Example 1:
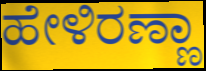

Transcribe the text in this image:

ಹೇಳಿರಣ್ಣಾ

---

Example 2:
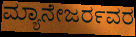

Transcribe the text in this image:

ಮ್ಯಾನೇಜರ್ರವರ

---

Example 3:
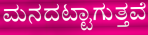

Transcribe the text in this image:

ಮನದಟ್ಟಾಗುತ್ತವೆ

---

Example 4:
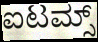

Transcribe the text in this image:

ಐಟಮ್ಸ್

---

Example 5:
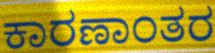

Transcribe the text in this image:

ಕಾರಣಾಂತರ